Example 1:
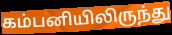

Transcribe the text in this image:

கம்பனியிலிருந்து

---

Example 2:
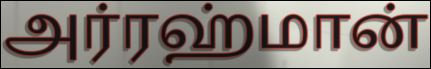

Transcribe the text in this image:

அர்ரஹ்மான்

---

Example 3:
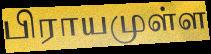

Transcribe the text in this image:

பிராயமுள்ள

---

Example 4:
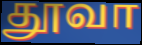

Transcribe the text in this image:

தூவா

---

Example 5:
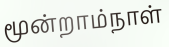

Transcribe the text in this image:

மூன்றாம்நாள்